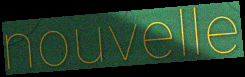
nouvelle